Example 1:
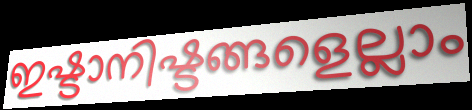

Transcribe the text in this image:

ഇഷ്ടാനിഷ്ടങ്ങളെല്ലാം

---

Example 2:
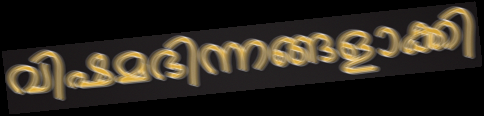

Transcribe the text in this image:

വിഷമഭിന്നങ്ങളാക്കി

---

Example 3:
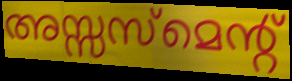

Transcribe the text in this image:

അസ്സസ്മെന്റ്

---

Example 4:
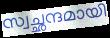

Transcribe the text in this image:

സ്വച്ഛന്ദമായി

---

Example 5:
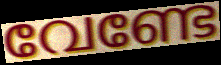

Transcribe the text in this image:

വേണ്ടേ